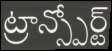
ట్రాన్స్పోర్ట్